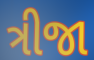
ત્રીજા